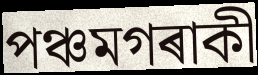
পঞ্চমগৰাকী